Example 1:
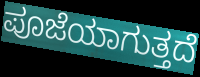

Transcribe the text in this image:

ಪೂಜೆಯಾಗುತ್ತದೆ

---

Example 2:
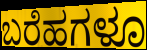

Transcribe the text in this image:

ಬರೆಹಗಳೂ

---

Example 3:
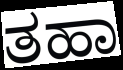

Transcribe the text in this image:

ತಹಾ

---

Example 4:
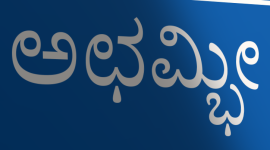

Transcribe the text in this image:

ಅಛಮ್ಭೀ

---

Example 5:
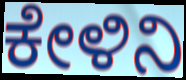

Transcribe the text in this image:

ಕೇಳಿನಿ